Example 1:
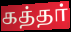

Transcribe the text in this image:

கத்தர்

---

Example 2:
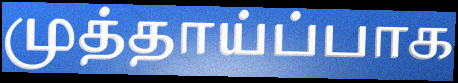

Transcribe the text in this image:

முத்தாய்ப்பாக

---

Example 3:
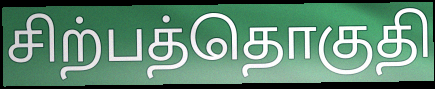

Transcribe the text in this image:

சிற்பத்தொகுதி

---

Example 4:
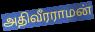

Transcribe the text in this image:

அதிவீரராமன்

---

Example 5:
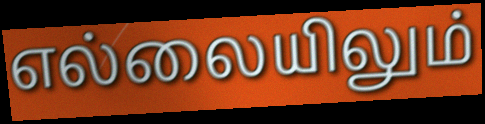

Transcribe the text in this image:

எல்லையிலும்